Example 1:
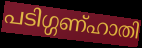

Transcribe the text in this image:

പടിഗ്ഗണ്ഹാതി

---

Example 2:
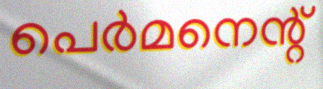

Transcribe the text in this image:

പെർമനെന്റ്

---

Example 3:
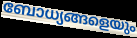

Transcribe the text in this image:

ബോധ്യങ്ങളെയും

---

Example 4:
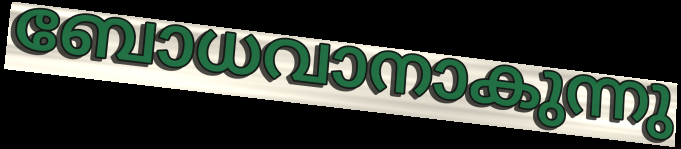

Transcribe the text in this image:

ബോധവാനാകുന്നു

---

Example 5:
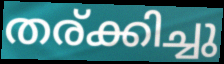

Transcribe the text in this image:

തര്ക്കിച്ചു